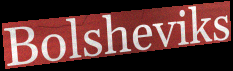
Bolsheviks